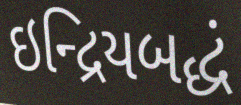
ઇન્દ્રિયબદ્ધં